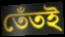
তেঁতই